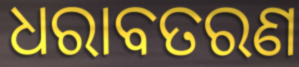
ଧରାବତରଣ